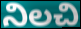
నిలచి